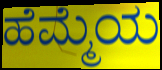
ಹೆಮ್ಮೆಯ